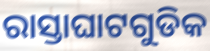
ରାସ୍ତାଘାଟଗୁଡିକ